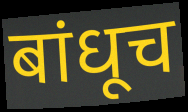
बांधूच